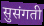
सुसंगती